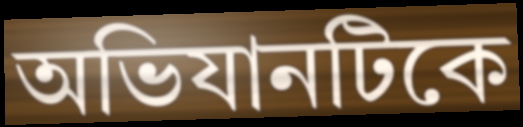
অভিযানটিকে